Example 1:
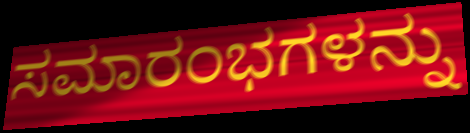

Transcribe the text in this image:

ಸಮಾರಂಭಗಳನ್ನು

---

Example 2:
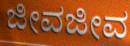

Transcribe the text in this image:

ಜೀವಜೀವ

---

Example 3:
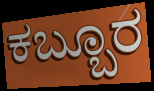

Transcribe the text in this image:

ಕಬ್ಬೂರ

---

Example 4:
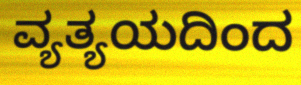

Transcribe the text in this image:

ವ್ಯತ್ಯಯದಿಂದ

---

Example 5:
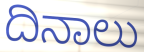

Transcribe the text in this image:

ದಿನಾಲು